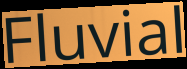
Fluvial